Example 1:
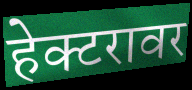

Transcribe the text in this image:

हेक्टरावर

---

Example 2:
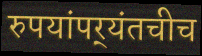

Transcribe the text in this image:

रुपयांपर्यंतचीच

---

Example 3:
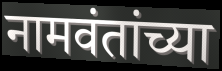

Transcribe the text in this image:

नामवंतांच्या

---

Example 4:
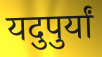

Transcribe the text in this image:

यदुपुर्यां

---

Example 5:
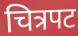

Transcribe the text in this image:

चित्रपट